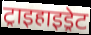
ट्राइहाइड्रेट